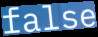
false